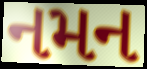
નમન